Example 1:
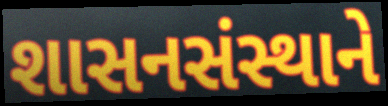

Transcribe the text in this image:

શાસનસંસ્થાને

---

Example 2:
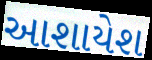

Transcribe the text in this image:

આશાયેશ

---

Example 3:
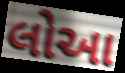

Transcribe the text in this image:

લોઆ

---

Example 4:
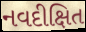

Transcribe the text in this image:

નવદીક્ષિત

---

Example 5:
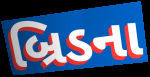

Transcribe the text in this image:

બ્રિડના